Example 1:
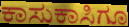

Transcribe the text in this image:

ಕಾಸುಕಾಸಿಗೂ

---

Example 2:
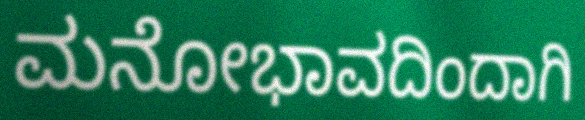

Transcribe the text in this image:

ಮನೋಭಾವದಿಂದಾಗಿ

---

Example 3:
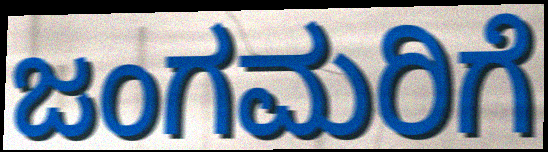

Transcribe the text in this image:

ಜಂಗಮರಿಗೆ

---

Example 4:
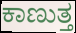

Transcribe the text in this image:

ಕಾಣುತ್ತ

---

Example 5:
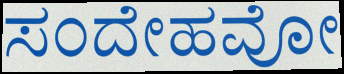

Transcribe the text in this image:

ಸಂದೇಹವೋ